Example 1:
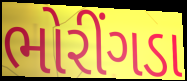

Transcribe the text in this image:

ભોરીંગડા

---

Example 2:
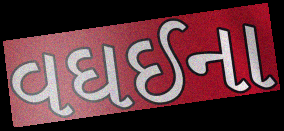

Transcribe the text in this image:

વઘઈના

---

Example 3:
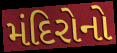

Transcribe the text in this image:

મંદિરોનો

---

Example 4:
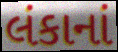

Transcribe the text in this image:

લંકાનાં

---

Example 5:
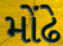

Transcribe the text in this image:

મોંઢે